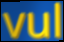
vul